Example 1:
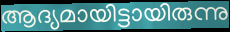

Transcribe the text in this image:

ആദ്യമായിട്ടായിരുന്നു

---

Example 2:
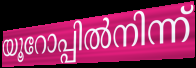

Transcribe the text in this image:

യൂറോപ്പിൽനിന്ന്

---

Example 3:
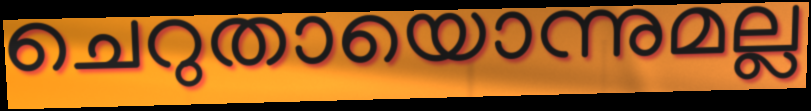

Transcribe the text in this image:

ചെറുതായൊന്നുമല്ല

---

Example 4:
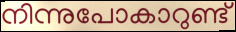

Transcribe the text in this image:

നിന്നുപോകാറുണ്ട്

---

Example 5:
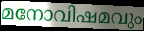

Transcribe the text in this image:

മനോവിഷമവും